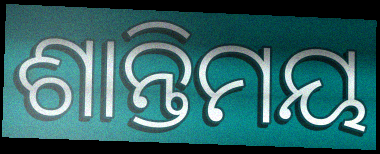
ଶାନ୍ତିମୟ